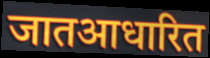
जातआधारित